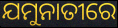
ଯମୁନାତୀରେ